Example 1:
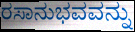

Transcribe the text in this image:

ರಸಾನುಭವವನ್ನು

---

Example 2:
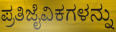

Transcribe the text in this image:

ಪ್ರತಿಜೈವಿಕಗಳನ್ನು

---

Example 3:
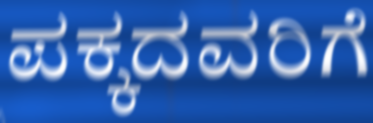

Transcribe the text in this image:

ಪಕ್ಕದವರಿಗೆ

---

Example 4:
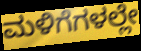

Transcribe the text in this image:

ಮಳಿಗೆಗಳಲ್ಲೇ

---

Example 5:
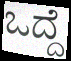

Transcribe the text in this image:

ಒದ್ದೆ